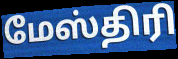
மேஸ்திரி